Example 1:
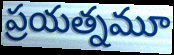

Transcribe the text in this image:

ప్రయత్నమూ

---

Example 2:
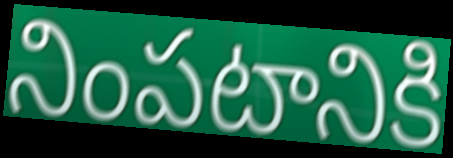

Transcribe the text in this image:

నింపటానికి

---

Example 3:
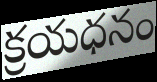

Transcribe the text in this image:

క్రయధనం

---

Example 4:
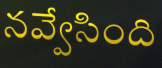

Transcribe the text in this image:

నవ్వేసింది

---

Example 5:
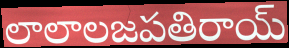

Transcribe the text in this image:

లాలాలజపతిరాయ్